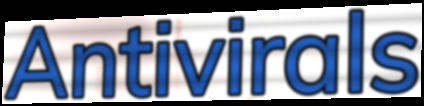
Antivirals